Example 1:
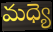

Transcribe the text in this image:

మధ్యె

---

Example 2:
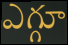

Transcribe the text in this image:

ఎగ్గూ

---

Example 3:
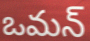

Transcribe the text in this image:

ఒమన్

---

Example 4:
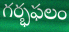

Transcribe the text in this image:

గర్భఫలం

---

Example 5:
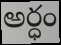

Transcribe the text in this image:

అర్ధం